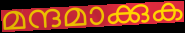
മന്ദമാക്കുക